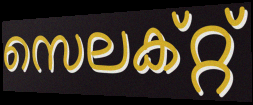
സെലക്റ്റ്